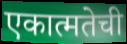
एकात्मतेची